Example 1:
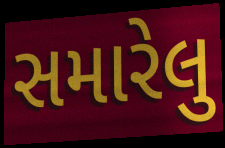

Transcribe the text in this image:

સમારેલુ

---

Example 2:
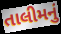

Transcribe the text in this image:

તાલીમનું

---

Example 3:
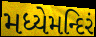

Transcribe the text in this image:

મધ્યેમન્દિરં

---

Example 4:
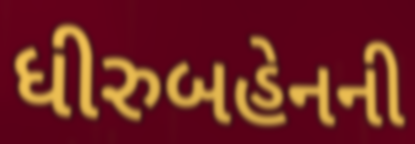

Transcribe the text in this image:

ધીરુબહેનની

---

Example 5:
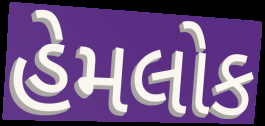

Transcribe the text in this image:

હેમલોક